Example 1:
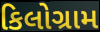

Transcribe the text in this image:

કિલોગ્રામ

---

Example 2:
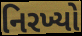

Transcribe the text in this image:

નિરખ્યો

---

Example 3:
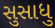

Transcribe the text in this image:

સુસાધુ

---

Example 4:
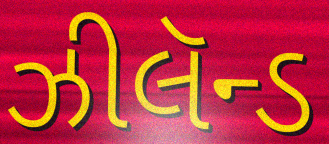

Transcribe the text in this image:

ઝીલૅન્ડ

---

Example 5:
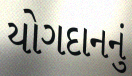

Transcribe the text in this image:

યોગદાનનું